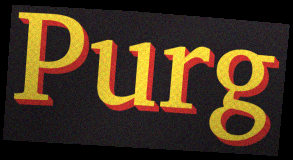
Purg